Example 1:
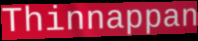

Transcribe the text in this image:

Thinnappan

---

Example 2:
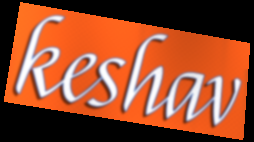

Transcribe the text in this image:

keshav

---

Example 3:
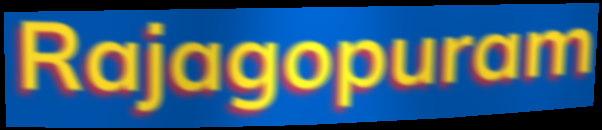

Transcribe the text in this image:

Rajagopuram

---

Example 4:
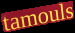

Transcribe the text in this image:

tamouls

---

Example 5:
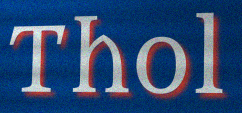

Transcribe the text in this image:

Thol